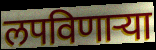
लपविणाऱ्या